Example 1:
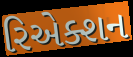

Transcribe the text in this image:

રિએક્શન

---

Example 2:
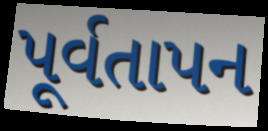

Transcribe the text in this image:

પૂર્વતાપન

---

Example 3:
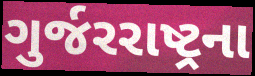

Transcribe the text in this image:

ગુર્જરરાષ્ટ્રના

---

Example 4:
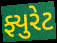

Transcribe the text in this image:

ફ્યુરેટ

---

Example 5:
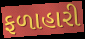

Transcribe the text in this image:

ફળાહારી